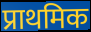
प्राथमिक